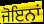
ਜੋਇਨਾਂ